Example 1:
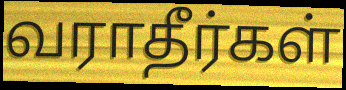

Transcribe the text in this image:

வராதீர்கள்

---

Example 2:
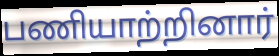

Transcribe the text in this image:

பணியாற்றினார்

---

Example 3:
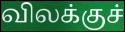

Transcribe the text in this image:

விலக்குச்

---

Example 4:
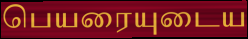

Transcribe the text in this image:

பெயரையுடைய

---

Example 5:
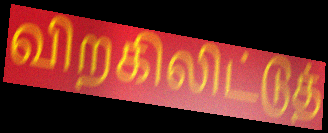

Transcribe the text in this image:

விறகிலிட்டுத்